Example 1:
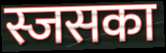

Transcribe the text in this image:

स्जसका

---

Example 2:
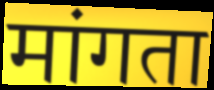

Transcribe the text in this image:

मांगता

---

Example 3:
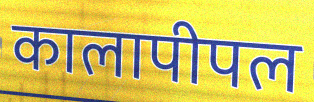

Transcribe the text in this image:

कालापीपल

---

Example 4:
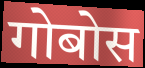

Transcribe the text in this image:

गोबोस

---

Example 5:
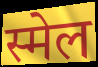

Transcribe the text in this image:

स्‍मेल